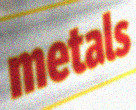
metals